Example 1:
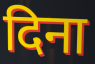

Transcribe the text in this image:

दिना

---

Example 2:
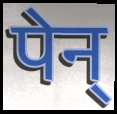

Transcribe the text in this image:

पेन्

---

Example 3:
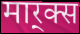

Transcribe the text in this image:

मार्क्स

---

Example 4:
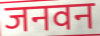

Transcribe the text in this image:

जनवन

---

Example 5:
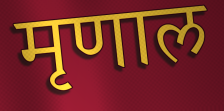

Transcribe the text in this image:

मृणाल